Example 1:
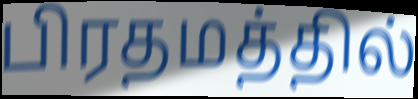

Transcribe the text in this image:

பிரதமத்தில்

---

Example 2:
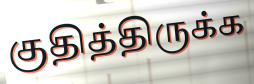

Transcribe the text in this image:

குதித்திருக்க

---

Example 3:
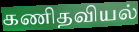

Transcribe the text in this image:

கணிதவியல்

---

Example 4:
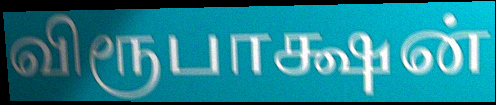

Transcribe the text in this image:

விரூபாக்ஷன்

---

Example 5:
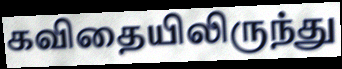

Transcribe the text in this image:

கவிதையிலிருந்து